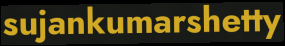
sujankumarshetty